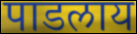
पाडलाय